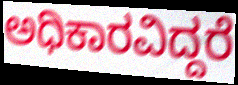
ಅಧಿಕಾರವಿದ್ದರೆ